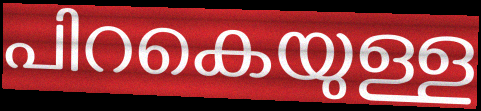
പിറകെയുള്ള